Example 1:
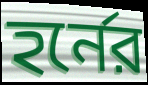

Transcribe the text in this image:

হর্নের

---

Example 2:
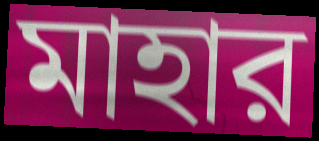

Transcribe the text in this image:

মাহার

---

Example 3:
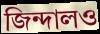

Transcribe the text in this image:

জিন্দালও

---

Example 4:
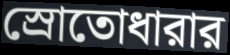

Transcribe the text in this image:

স্রোতোধারার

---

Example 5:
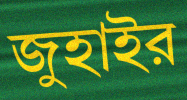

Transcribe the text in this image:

জুহাইর